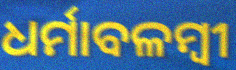
ଧର୍ମାବଳମ୍ବୀ